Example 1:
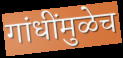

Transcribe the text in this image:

गांधींमुळेच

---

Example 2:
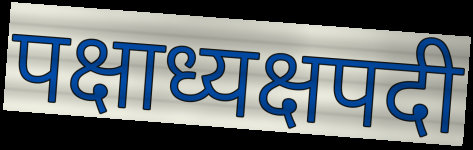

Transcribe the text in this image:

पक्षाध्यक्षपदी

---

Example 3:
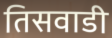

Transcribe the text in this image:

तिसवाडी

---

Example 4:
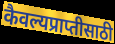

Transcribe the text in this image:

कैवल्यप्राप्तीसाठी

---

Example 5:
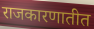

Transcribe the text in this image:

राजकारणातीत